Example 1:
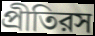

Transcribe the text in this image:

প্রীতিরস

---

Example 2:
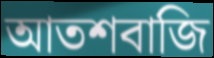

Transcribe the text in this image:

আতশবাজি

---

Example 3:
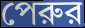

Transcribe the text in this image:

পেরুর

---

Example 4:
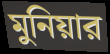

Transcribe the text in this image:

মুনিয়ার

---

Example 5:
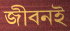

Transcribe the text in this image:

জীবনই